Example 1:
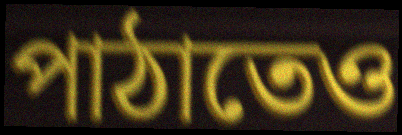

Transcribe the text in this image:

পাঠাতেও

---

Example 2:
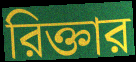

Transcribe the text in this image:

রিক্তার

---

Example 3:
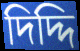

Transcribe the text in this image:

দিদ্দি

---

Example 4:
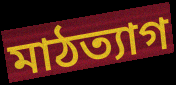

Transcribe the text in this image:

মাঠত্যাগ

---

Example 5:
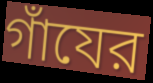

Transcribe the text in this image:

গাঁযের